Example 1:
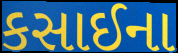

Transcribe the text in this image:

કસાઈના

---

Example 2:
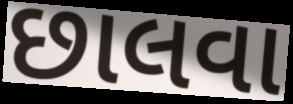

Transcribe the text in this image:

છાલવા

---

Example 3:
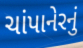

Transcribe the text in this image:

ચાંપાનેરનું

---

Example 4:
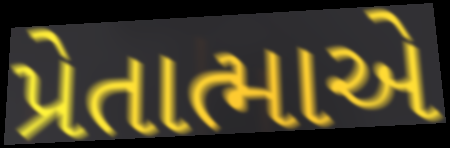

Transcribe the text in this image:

પ્રેતાત્માએ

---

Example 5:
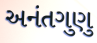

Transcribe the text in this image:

અનંતગુણુ